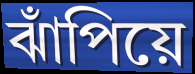
ঝাঁপিয়ে